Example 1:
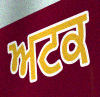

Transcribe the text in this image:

ਅਟਕ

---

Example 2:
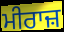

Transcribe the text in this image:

ਮੀਰਾਜ਼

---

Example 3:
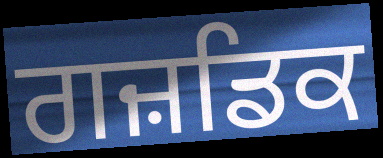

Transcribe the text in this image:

ਗਜ਼ਡਿਕ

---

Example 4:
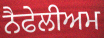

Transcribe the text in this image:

ਨੈਫੇਲੀਅਮ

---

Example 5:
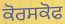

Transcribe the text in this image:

ਕੋਰਸਕੋਫ